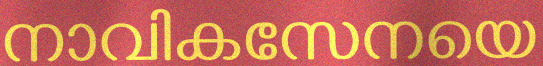
നാവികസേനയെ